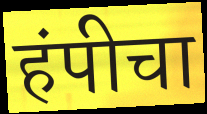
हंपीचा